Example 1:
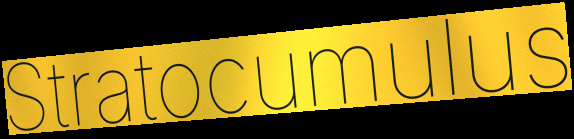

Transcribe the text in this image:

Stratocumulus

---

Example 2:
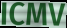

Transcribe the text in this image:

ICMV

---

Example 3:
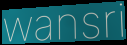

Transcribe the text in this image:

wansri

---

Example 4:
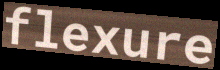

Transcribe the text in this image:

flexure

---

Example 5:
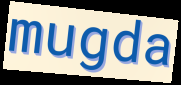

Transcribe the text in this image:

mugda